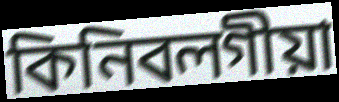
কিনিবলগীয়া